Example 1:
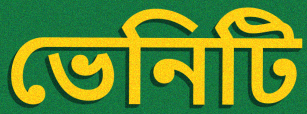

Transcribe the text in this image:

ভেনিটি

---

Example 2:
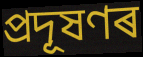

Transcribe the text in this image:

প্ৰদূষণৰ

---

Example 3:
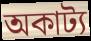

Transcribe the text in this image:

অকাট্য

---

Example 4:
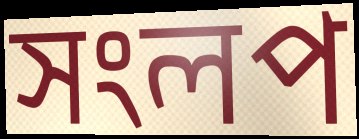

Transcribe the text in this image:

সংলপ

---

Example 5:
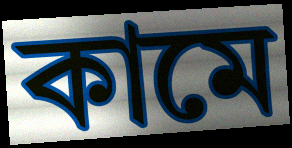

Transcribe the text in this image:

কামে